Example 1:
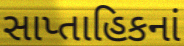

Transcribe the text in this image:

સાપ્તાહિકનાં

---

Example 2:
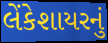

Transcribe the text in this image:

લેંકેશાયરનું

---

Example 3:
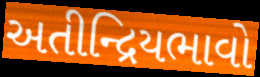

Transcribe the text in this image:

અતીન્દ્રિયભાવો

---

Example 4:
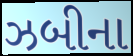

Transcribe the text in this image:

ઝબીના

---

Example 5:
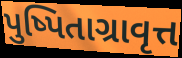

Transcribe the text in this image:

પુષ્પિતાગ્રાવૃત્ત